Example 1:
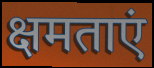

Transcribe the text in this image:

क्षमताएं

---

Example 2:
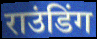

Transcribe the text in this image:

राउंडिंग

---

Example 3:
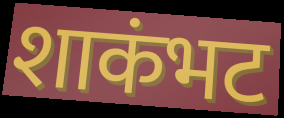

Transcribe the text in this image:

शाकंभट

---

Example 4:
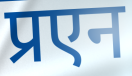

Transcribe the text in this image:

प्रएन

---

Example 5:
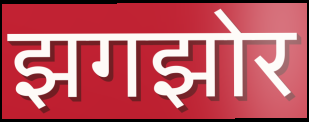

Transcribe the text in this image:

झगझोर